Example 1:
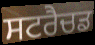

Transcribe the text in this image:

ਸਟਰੈਚਡ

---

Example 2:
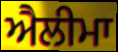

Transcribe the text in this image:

ਐਲੀਮਾ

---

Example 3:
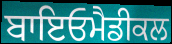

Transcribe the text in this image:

ਬਾਇਓਮੈਡੀਕਲ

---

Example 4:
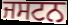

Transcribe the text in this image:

ਜਸਟਨ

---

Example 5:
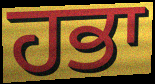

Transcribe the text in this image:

ਹਭਾ